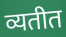
व्यतीत